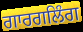
ਗਾਰਗਲਿੰਗ